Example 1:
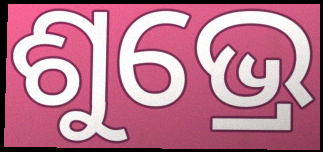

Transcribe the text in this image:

ଶୁଭ୍ରେ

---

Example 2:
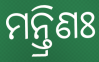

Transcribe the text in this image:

ମନ୍ତ୍ରିଣଃ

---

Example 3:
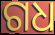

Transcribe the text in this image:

ଗଧ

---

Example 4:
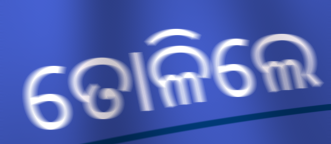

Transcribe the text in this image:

ତୋଳିଲେ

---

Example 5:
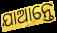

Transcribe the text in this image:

ଯାଆନ୍ତେ